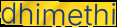
dhimethi